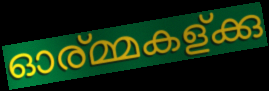
ഓര്മ്മകള്ക്കു